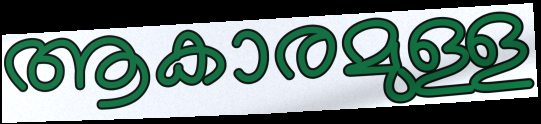
ആകാരമുള്ള